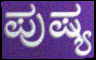
ಪುಷ್ಯ